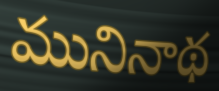
మునినాథ